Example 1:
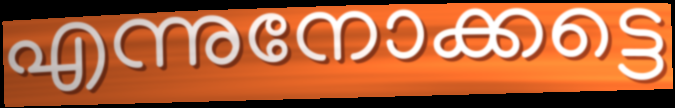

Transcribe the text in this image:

എന്നുനോക്കട്ടെ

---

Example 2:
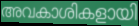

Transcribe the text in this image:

അവകാശികളായി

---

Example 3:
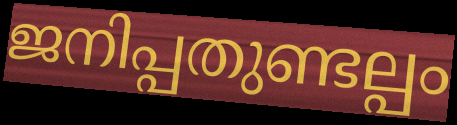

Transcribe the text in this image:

ജനിപ്പതുണ്ടല്പം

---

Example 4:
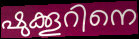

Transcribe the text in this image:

ഷുക്കൂറിനെ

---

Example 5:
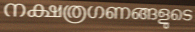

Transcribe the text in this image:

നക്ഷത്രഗണങ്ങളുടെ